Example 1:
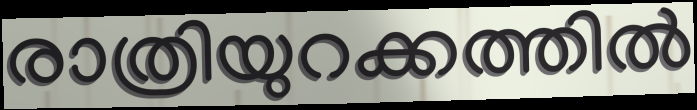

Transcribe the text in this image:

രാത്രിയുറക്കത്തിൽ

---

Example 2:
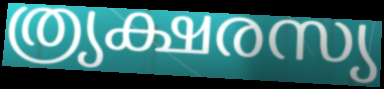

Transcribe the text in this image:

ത്ര്യക്ഷരസ്യ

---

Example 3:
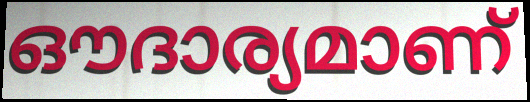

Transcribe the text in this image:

ഔദാര്യമാണ്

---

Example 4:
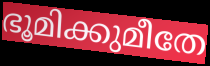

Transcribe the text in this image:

ഭൂമിക്കുമീതേ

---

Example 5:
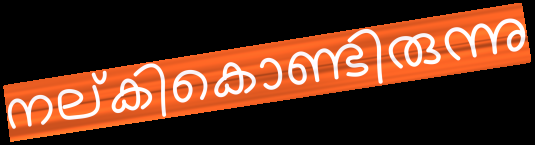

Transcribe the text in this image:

നല്കികൊണ്ടിരുന്നു